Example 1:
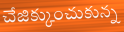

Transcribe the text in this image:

చేజిక్కుంచుకున్న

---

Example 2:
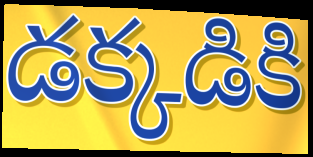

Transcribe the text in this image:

డక్కడికి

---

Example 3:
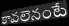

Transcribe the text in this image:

కావలెనంటే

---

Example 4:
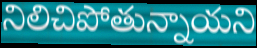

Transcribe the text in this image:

నిలిచిపోతున్నాయని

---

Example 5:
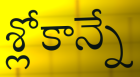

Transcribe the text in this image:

శ్లోకాన్నే